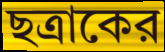
ছত্রাকের